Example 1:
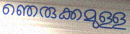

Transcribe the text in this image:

ഞെരുക്കമുള്ള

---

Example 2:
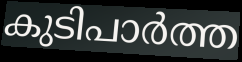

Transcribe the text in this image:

കുടിപാർത്ത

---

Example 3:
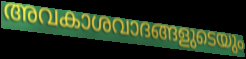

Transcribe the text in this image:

അവകാശവാദങ്ങളുടെയും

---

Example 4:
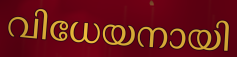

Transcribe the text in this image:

വിധേയനായി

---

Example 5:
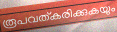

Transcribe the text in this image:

രൂപവത്കരിക്കുകയും